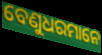
ବେଣୁଧରମାନେ